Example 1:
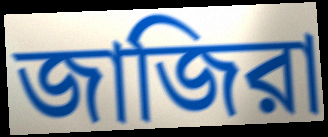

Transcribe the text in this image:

জাজিরা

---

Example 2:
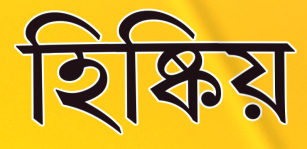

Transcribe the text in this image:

হিষ্কিয়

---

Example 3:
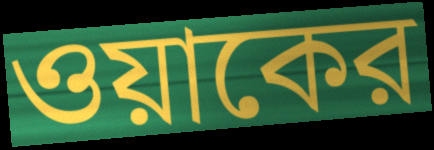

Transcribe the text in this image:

ওয়াকের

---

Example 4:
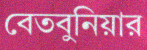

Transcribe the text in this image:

বেতবুনিয়ার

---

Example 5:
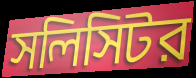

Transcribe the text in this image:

সলিসিটর